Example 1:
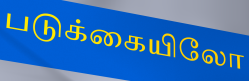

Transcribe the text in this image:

படுக்கையிலோ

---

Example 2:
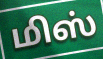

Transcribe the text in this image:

மிஸ்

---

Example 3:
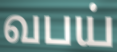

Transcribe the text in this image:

வபய்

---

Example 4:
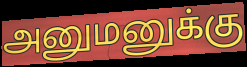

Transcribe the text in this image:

அனுமனுக்கு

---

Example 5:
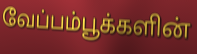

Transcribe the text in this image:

வேப்பம்பூக்களின்